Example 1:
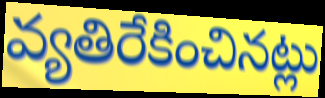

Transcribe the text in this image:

వ్యతిరేకించినట్లు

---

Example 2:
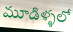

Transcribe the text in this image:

మూడిళ్ళలో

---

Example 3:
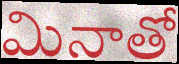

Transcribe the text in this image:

మినాతో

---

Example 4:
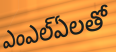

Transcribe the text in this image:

ఎంఎల్ఏలతో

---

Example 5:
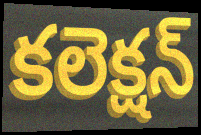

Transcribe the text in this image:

కలెక్షన్